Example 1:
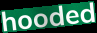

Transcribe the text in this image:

hooded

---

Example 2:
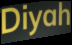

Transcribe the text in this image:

Diyah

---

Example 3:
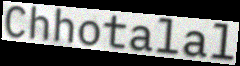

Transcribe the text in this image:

Chhotalal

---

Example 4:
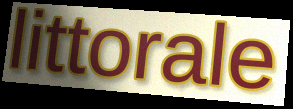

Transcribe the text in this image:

littorale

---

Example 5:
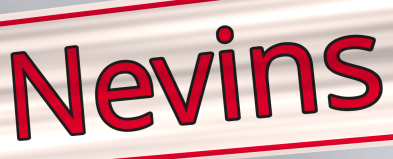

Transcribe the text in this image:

Nevins